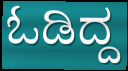
ಓಡಿದ್ದ